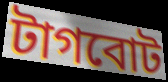
টাগবোট